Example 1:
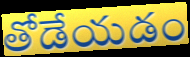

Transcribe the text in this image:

తోడేయడం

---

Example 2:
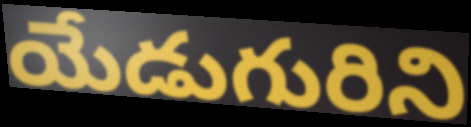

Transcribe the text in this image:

యేడుగురిని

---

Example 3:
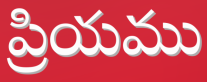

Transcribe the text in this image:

ప్రియము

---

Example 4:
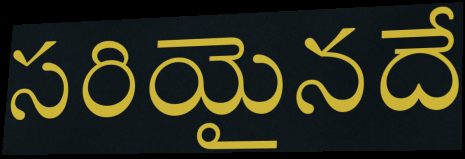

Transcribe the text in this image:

సరియైనదే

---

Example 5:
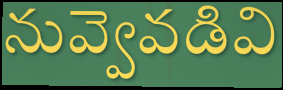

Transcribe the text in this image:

నువ్వెవడివి